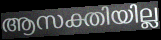
ആസക്തിയില്ല